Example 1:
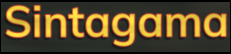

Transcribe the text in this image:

Sintagama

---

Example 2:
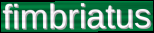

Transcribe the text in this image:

fimbriatus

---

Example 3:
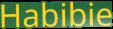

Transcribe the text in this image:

Habibie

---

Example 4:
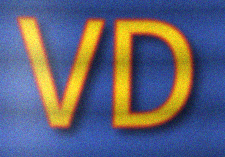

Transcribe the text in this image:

VD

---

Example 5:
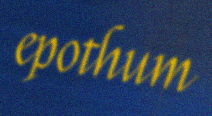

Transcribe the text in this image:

epothum